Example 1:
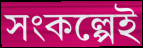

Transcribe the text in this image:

সংকল্পেই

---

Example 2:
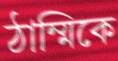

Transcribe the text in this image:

ঠাম্মিকে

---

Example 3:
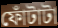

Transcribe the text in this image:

ফোঁটাটা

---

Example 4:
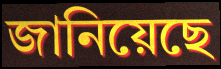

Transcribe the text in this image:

জানিয়েছে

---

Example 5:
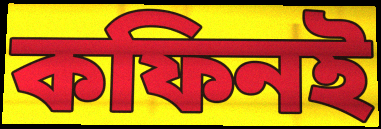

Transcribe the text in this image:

কফিনই